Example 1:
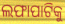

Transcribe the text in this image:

ଲଫାପାଟିକୁ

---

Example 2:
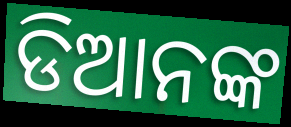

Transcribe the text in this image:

ଡିଆନଙ୍କ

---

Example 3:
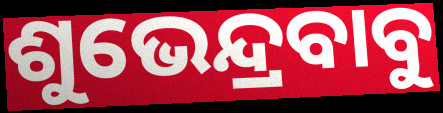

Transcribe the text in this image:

ଶୁଭେନ୍ଦ୍ରବାବୁ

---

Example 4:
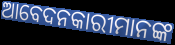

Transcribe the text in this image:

ଆବେଦନକାରୀମାନଙ୍କ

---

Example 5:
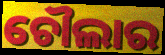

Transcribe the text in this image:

ଚୌଲାର